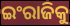
ଇଂରାଜିକୁ